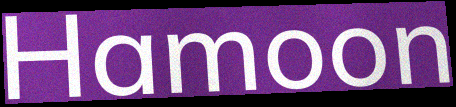
Hamoon